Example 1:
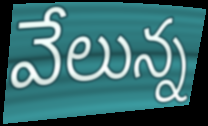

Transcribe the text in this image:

వేలున్న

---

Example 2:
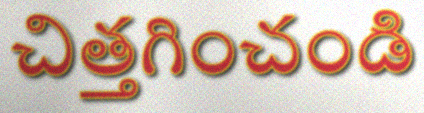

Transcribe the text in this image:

చిత్తగించండి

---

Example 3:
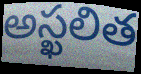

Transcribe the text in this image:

అస్ఖలిత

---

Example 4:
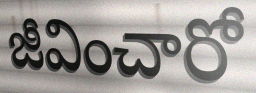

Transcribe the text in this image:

జీవించారో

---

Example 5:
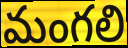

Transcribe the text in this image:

మంగలి